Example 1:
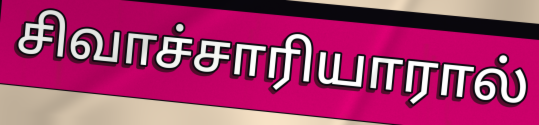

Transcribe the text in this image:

சிவாச்சாரியாரால்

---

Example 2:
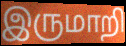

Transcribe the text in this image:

இருமாறி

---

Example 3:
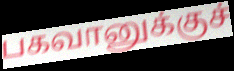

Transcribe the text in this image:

பகவானுக்குச்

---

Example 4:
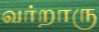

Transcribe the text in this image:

வர்றாரு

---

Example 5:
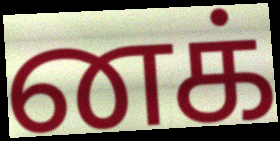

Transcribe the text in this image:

னக்